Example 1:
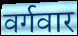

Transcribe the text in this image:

वर्गवार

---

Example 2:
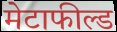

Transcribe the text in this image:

मेटाफील्ड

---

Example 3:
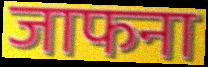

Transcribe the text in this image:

जाफना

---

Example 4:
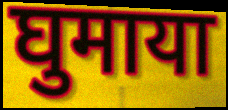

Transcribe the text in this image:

घुमाया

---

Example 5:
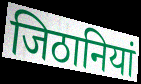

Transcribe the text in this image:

जिठानियां